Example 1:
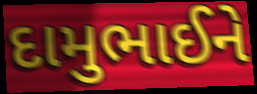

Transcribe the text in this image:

દામુભાઈને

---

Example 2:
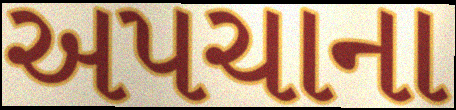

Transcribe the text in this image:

અપચાના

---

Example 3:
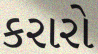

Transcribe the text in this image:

કરારો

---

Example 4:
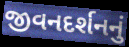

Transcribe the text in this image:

જીવનદર્શનનું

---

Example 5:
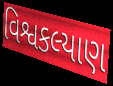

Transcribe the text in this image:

વિશ્વકલ્યાણ